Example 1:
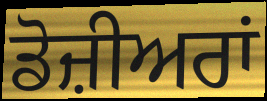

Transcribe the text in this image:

ਡੋਜ਼ੀਅਰਾਂ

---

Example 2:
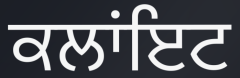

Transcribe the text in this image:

ਕਲਾਂਇਟ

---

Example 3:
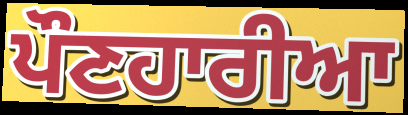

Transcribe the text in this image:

ਪੌਣਹਾਰੀਆ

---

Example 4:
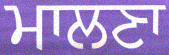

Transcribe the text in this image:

ਮਾਲਣਾ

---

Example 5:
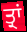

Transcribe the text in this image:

ਤ੍ਰਾਂ